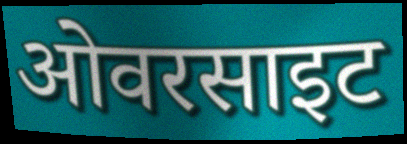
ओवरसाइट